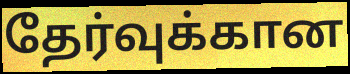
தேர்வுக்கான